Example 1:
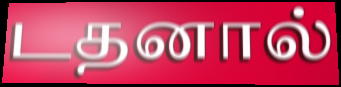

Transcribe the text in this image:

டதனால்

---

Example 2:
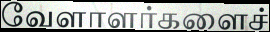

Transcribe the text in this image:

வேளாளர்களைச்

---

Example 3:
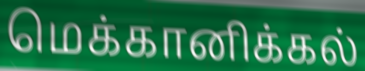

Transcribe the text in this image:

மெக்கானிக்கல்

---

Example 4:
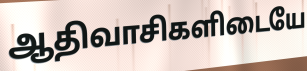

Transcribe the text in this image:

ஆதிவாசிகளிடையே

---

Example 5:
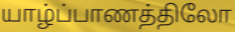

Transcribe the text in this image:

யாழ்ப்பாணத்திலோ